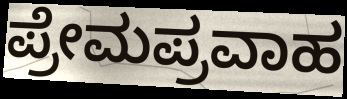
ಪ್ರೇಮಪ್ರವಾಹ